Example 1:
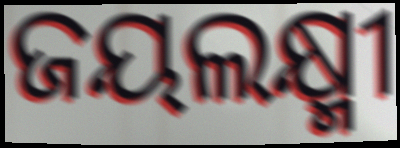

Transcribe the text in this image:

ଜୟଲକ୍ଷ୍ମୀ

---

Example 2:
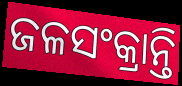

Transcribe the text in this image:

ଜଳସଂକ୍ରାନ୍ତି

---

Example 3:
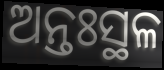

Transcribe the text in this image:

ଅନ୍ତଃସ୍ଥଳ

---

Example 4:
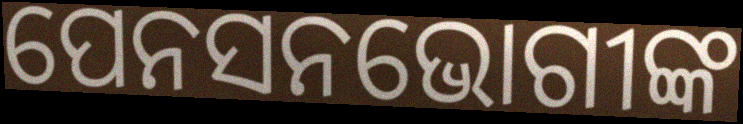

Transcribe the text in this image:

ପେନସନଭୋଗୀଙ୍କ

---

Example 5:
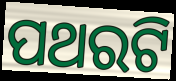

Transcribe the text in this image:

ପଥରଟି